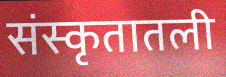
संस्कृतातली